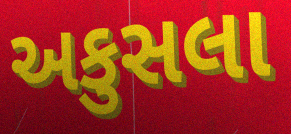
અકુસલા